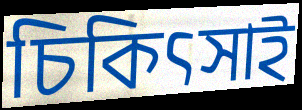
চিকিৎসাই